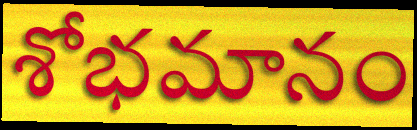
శోభమానం